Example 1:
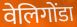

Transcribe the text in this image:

वेलिगोंडा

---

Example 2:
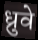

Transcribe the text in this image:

ध्रुवे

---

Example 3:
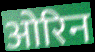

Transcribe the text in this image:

ओरिन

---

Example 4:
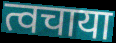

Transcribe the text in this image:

त्वचाया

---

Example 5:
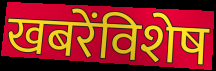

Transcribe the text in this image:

खबरेंविशेष